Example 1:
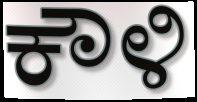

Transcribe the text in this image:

ಕೌಳಿ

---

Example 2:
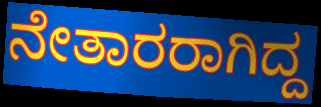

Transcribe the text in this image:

ನೇತಾರರಾಗಿದ್ದ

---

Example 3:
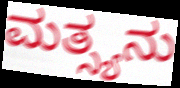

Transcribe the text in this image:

ಮತ್ಸ್ಯನು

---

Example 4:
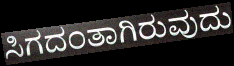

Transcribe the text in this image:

ಸಿಗದಂತಾಗಿರುವುದು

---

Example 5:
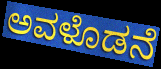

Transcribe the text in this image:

ಅವಳೊಡನೆ